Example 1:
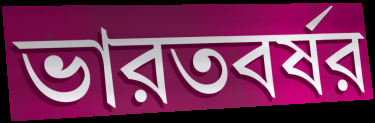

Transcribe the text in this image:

ভারতবর্ষর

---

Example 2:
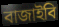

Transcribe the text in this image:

বাজাইবি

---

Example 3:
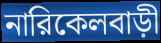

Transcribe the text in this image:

নারিকেলবাড়ী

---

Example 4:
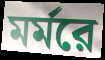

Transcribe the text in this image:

মর্মরে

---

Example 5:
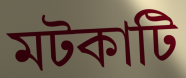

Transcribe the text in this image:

মটকাটি